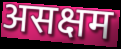
असक्षम